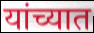
यांच्यात